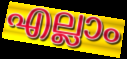
എല്ലാം